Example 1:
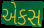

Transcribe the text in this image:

એકસ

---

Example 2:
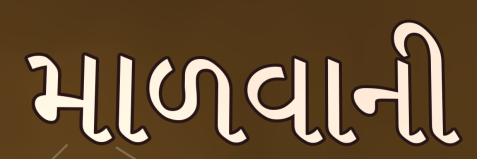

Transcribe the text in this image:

માળવાની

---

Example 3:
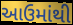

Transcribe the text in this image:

આઉમાંથી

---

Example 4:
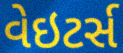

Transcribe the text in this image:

વેઇટર્સ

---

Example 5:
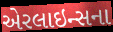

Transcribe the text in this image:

એરલાઇન્સના